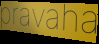
pravaha